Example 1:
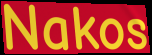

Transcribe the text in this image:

Nakos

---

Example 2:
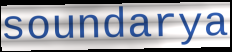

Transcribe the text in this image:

soundarya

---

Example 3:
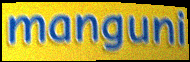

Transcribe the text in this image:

manguni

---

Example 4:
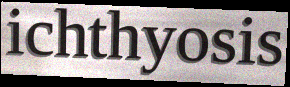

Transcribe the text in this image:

ichthyosis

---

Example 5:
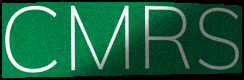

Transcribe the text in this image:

CMRS